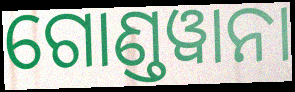
ଗୋଣ୍ଡୱାନା